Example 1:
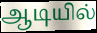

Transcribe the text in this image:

ஆடியில்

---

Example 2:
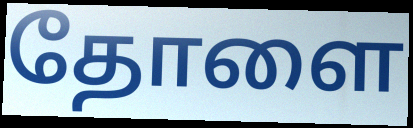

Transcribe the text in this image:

தோளை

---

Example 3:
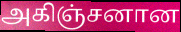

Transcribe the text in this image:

அகிஞ்சனான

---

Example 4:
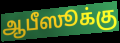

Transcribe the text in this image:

ஆபீஸூக்கு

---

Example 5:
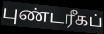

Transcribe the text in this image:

புண்டரீகப்